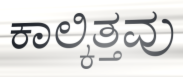
ಕಾಲ್ಕಿತ್ತವು